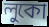
লুকো